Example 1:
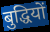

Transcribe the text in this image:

बुद्धियों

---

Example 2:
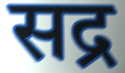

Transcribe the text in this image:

सद्र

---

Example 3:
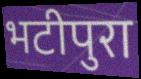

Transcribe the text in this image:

भटीपुरा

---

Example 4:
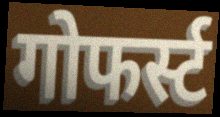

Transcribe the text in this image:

गोफर्स्ट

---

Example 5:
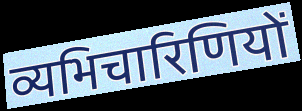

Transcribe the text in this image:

व्यभिचारिणियों